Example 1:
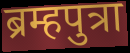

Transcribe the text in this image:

ब्रम्हपुत्रा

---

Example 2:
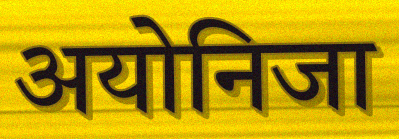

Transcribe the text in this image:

अयोनिजा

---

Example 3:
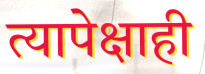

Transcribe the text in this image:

त्यापेक्षाही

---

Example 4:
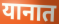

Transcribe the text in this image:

यानात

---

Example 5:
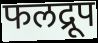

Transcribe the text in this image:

फलद्रूप